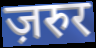
ज़रुर